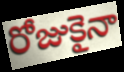
రోజుకైనా